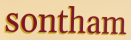
sontham